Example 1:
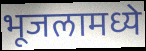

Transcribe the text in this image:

भूजलामध्ये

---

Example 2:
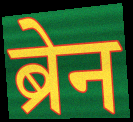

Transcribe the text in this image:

ब्रेन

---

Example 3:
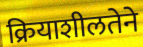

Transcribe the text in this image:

क्रियाशीलतेने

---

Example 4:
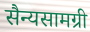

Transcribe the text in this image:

सैन्यसामग्री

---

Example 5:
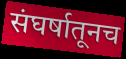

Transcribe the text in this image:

संघर्षातूनच